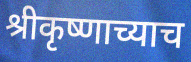
श्रीकृष्णाच्याच